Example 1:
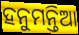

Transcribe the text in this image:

ହନୁମନ୍ତିଆ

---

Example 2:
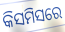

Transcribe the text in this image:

କିସମିସରେ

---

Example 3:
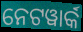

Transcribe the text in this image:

ନେଟୱାର୍କ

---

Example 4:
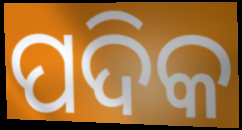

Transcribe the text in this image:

ପଦିକ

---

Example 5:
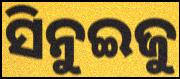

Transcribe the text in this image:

ସିନୁଇଜୁ